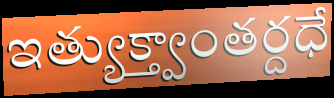
ఇత్యుక్త్వాంతర్దధే